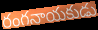
రంగనాయకుడు